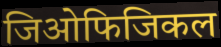
जिओफिजिकल